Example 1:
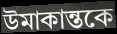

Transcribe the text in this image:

উমাকান্তকে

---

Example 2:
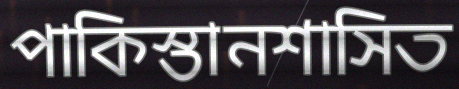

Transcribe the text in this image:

পাকিস্তানশাসিত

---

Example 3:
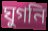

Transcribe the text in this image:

ঘুগনি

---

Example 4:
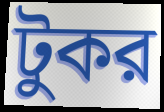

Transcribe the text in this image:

টুকর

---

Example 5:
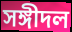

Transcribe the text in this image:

সঙ্গীদল